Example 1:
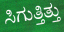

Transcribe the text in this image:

ಸಿಗುತ್ತಿತ್ತು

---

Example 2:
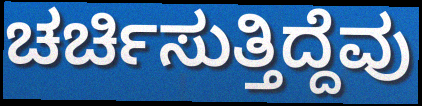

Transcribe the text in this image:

ಚರ್ಚಿಸುತ್ತಿದ್ದೆವು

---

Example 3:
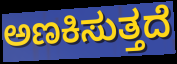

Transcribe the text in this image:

ಅಣಕಿಸುತ್ತದೆ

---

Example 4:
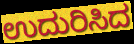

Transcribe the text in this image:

ಉದುರಿಸಿದ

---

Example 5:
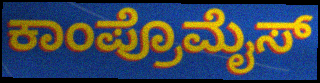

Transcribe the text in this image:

ಕಾಂಪ್ರೊಮೈಸ್